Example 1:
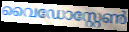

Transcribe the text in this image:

വൈഡോസ്റ്റേൺ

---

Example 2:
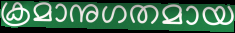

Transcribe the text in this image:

ക്രമാനുഗതമായ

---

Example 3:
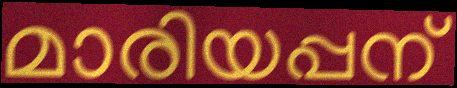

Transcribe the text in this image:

മാരിയപ്പന്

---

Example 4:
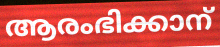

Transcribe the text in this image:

ആരംഭിക്കാന്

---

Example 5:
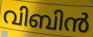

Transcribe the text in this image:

വിബിൻ